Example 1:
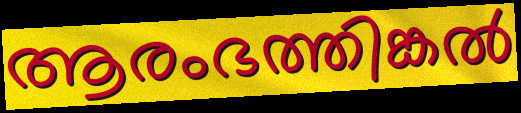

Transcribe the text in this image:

ആരംഭത്തിങ്കൽ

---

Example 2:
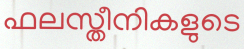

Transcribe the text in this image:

ഫലസ്തീനികളുടെ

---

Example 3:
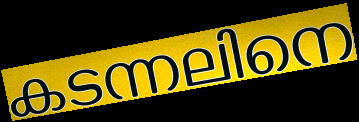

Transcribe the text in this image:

കടന്നലിനെ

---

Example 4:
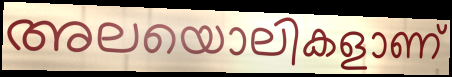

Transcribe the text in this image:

അലയൊലികളാണ്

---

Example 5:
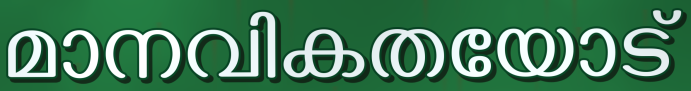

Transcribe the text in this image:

മാനവികതയോട്